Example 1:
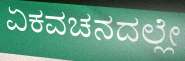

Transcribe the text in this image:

ಏಕವಚನದಲ್ಲೇ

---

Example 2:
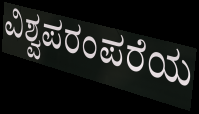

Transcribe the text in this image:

ವಿಶ್ವಪರಂಪರೆಯ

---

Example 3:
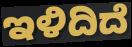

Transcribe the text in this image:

ಇಳಿದಿದೆ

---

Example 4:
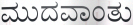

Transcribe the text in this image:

ಮುದವಾಂತು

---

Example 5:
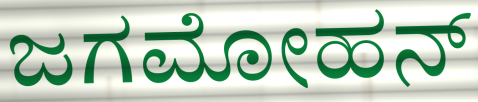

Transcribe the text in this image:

ಜಗಮೋಹನ್